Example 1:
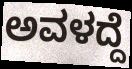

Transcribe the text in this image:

ಅವಳದ್ದೆ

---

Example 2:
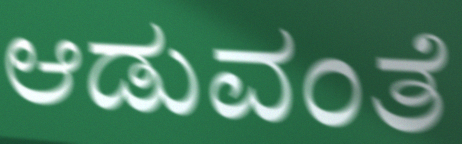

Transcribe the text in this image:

ಆಡುವಂತೆ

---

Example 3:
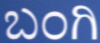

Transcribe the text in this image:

ಬಂಗಿ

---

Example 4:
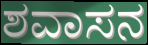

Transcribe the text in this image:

ಶವಾಸನ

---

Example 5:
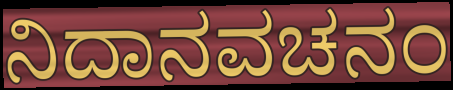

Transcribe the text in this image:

ನಿದಾನವಚನಂ